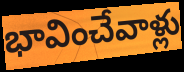
భావించేవాళ్లు